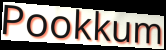
Pookkum